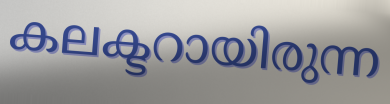
കലക്ടറായിരുന്ന